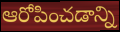
ఆరోపించడాన్ని